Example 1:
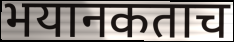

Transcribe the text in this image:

भयानकताच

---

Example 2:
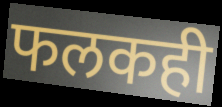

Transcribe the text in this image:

फलकही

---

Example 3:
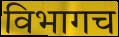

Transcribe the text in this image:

विभागच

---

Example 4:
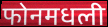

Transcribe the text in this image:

फोनमधली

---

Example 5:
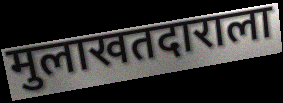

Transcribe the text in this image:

मुलाखतदाराला